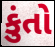
કુંતો